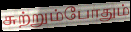
சுற்றும்போதும்